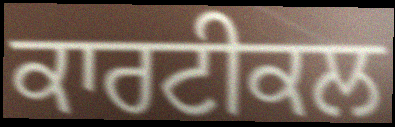
ਕਾਰਟੀਕਲ